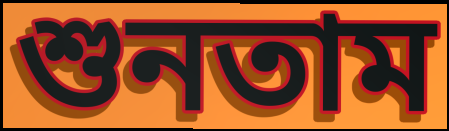
শুনতাম